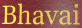
Bhavai